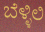
ಬೆಳ್ಳಿಲಿ